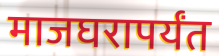
माजघरापर्यंत